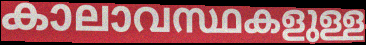
കാലാവസ്ഥകളുള്ള